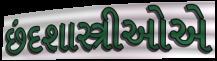
છંદશાસ્ત્રીઓએ